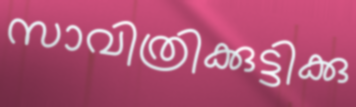
സാവിത്രിക്കുട്ടിക്കു